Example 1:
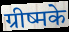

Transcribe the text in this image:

ग्रीष्मके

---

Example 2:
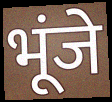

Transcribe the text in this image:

भूंजे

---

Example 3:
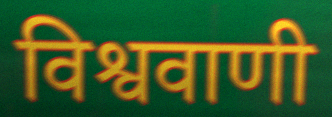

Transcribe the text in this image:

विश्ववाणी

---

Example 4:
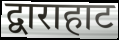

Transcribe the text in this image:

द्वाराहाट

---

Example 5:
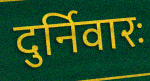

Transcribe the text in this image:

दुर्निवारः